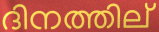
ദിനത്തില്